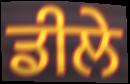
ਡੀਲੇ